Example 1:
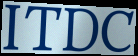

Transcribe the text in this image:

ITDC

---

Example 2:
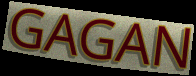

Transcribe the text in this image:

GAGAN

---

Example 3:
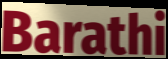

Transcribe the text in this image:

Barathi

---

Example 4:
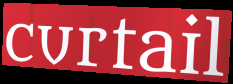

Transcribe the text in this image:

curtail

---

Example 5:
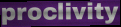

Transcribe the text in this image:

proclivity